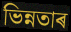
ভিন্নতাৰ